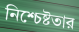
নিশ্চেষ্টতার